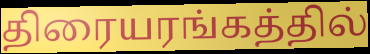
திரையரங்கத்தில்